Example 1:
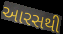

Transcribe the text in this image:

આરસથી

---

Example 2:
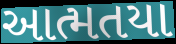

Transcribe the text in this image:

આત્મતયા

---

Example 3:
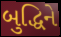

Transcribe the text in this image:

બુદ્ધિને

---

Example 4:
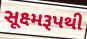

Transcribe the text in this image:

સૂક્ષ્મરૂપથી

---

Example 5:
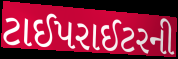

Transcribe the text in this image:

ટાઈપરાઈટરની